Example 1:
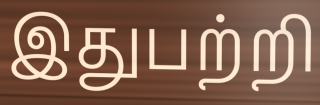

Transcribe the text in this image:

இதுபற்றி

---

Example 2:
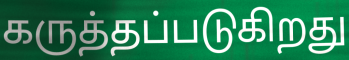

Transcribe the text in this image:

கருத்தப்படுகிறது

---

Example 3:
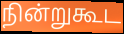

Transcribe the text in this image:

நின்றுகூட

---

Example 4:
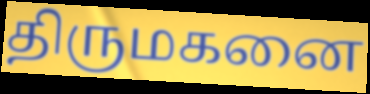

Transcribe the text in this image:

திருமகனை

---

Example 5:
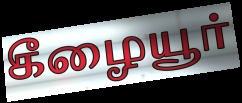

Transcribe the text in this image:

கீழையூர்